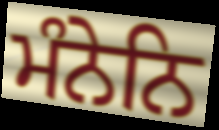
ਮੰਨੇਨਿ